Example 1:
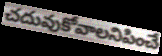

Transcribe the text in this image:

చదువుకోవాలనిపించే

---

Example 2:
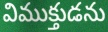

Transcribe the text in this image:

విముక్తుడను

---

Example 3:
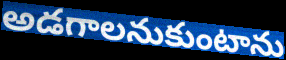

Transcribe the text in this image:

అడగాలనుకుంటాను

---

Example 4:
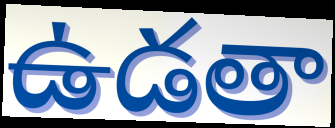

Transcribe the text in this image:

ఉడతా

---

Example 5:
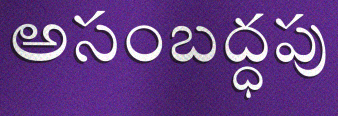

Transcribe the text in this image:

అసంబద్ధపు